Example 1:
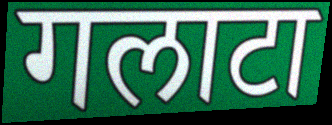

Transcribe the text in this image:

गलाटा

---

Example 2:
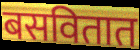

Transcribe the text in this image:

बसवितात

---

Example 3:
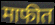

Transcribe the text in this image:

माफीत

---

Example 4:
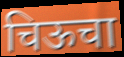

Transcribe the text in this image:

चिऊचा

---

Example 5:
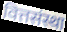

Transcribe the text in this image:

वित्तसंस्था